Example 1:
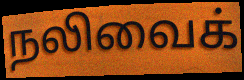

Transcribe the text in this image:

நலிவைக்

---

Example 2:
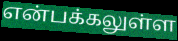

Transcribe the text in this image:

என்பக்கலுள்ள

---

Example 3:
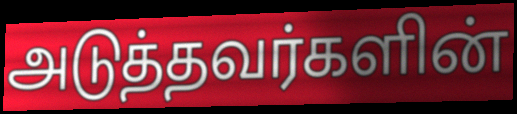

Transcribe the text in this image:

அடுத்தவர்களின்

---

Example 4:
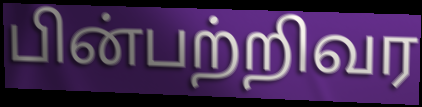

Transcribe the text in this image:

பின்பற்றிவர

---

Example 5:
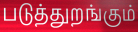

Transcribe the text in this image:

படுத்துறங்கும்